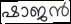
ഷാജൻ